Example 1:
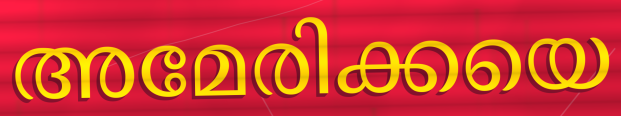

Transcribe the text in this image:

അമേരിക്കയെ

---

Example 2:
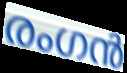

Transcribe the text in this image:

രംഗൻ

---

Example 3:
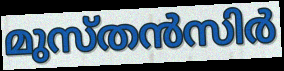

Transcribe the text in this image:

മുസ്തൻസിർ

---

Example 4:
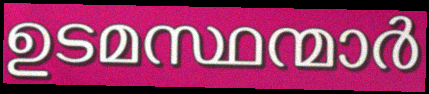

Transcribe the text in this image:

ഉടമസ്ഥന്മാർ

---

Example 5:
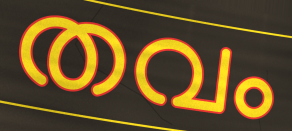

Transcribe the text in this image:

തവം